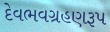
દેવભવગ્રહણરૂપ